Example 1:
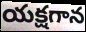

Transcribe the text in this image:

యక్షగాన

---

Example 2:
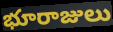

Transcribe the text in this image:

భూరాజులు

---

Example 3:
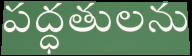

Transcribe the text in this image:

పద్ధతులను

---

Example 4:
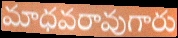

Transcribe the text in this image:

మాధవరావుగారు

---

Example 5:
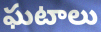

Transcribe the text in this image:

ఘటాలు